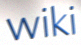
wiki